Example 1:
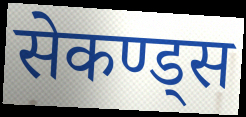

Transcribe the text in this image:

सेकण्ड्स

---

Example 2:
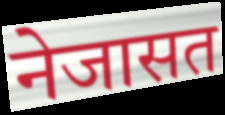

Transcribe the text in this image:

नेजासत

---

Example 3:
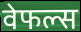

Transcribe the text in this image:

वेफल्स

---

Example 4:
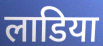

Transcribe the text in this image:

लाडिया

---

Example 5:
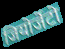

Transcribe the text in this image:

जियोर्जेटो